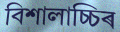
বিশালাচ্চিৰ